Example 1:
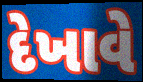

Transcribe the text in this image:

દેખાવે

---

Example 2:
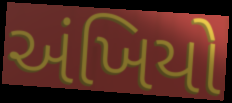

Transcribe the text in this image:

અંખિયો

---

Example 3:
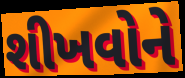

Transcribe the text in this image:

શીખવોને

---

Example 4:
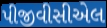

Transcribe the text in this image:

પીજીવીસીએલ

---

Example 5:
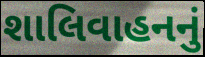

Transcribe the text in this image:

શાલિવાહનનું